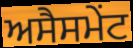
ਅਸੈਸਮੇਂਟ